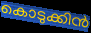
കൊടുക്കിൻ